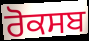
ਰੋਕਸਬ